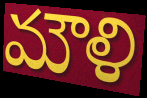
మౌళి